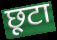
छूटा